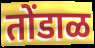
तोंडाळ